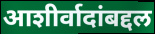
आशीर्वादांबद्दल